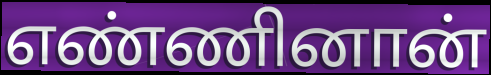
எண்ணினான்